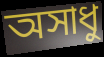
অসাধু